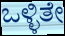
ಒಳ್ಳಿತೇ